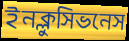
ইনক্লুসিভনেস